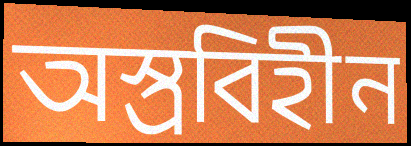
অস্ত্রবিহীন